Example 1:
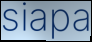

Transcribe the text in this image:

siapa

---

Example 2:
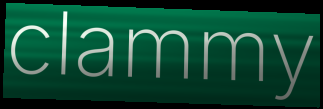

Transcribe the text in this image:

clammy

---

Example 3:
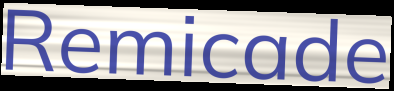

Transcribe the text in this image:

Remicade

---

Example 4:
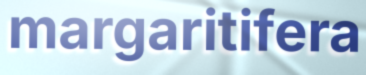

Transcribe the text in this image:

margaritifera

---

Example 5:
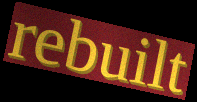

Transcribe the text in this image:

rebuilt